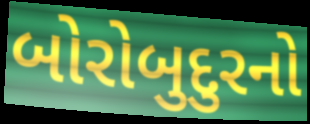
બોરોબુદુરનો